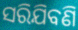
ସରିଯିବଣି